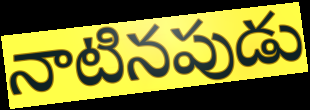
నాటినపుడు